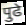
पुढे